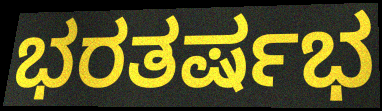
ಭರತರ್ಷಭ